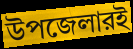
উপজেলারই